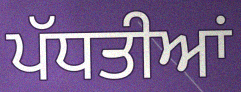
ਪੱਧਤੀਆਂ